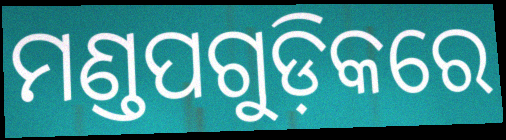
ମଣ୍ଡପଗୁଡ଼ିକରେ